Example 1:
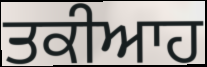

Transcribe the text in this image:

ਤਕੀਆਹ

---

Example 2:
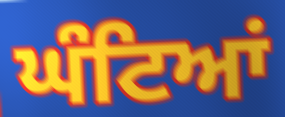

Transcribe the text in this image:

ਘੰਟਿਆਂ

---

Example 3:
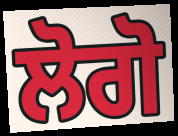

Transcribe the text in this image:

ਲੋਗੋ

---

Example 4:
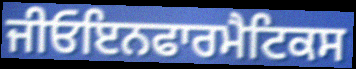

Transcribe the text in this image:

ਜੀਓਇਨਫਾਰਮੈਟਿਕਸ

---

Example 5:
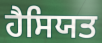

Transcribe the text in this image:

ਹੈਸਿਯਤ